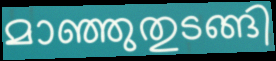
മാഞ്ഞുതുടങ്ങി